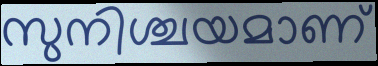
സുനിശ്ചയമാണ്